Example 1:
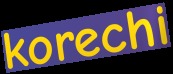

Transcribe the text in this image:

korechi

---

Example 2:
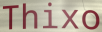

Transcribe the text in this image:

Thixo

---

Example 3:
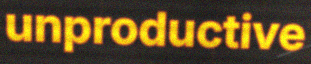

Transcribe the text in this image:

unproductive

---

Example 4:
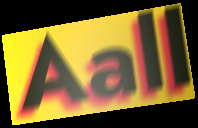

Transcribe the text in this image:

Aall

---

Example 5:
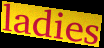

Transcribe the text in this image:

ladies